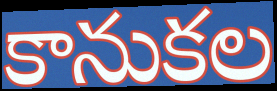
కానుకల